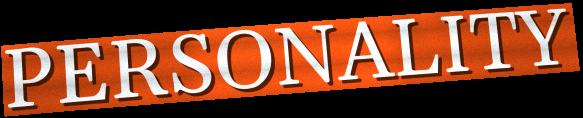
PERSONALITY